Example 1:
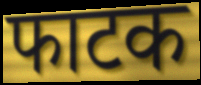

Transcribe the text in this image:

फाटक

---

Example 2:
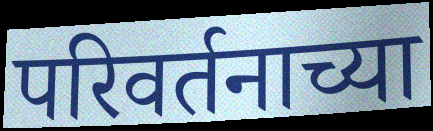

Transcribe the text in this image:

परिवर्तनाच्या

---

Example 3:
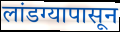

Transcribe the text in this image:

लांडग्यापासून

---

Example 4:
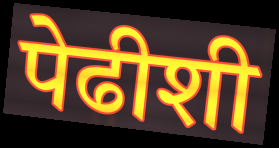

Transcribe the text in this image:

पेढीशी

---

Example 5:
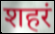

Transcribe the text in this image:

शहरं